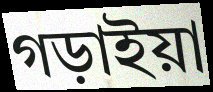
গড়াইয়া